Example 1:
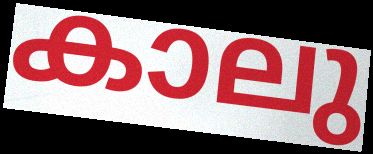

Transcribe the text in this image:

കാലു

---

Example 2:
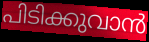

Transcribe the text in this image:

പിടിക്കുവാൻ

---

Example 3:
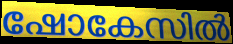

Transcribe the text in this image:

ഷോകേസിൽ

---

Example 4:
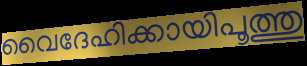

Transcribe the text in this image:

വൈദേഹിക്കായിപൂത്തു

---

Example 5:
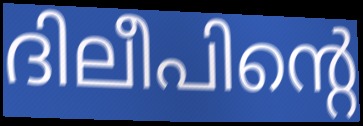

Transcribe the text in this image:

ദിലീപിന്റെ